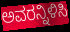
ಅವರನ್ನಿಳಿಸಿ